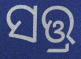
ସତ୍ତ୍ର